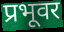
प्रभूवर